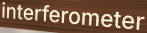
interferometer